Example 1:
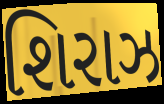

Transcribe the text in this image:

શિરાઝ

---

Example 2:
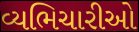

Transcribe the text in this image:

વ્યભિચારીઓ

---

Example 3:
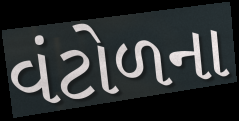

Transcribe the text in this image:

વંટોળના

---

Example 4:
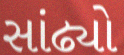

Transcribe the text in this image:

સાંઢ્યો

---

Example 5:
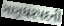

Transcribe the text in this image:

ગણધરપદની